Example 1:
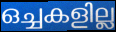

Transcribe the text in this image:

ഒച്ചകളില്ല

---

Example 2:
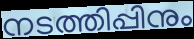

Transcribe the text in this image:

നടത്തിപ്പിനും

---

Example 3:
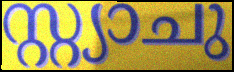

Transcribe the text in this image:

സ്റ്റ്യാചു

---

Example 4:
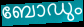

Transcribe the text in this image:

ബോഡും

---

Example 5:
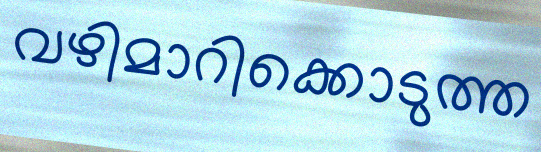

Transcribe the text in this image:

വഴിമാറിക്കൊടുത്ത